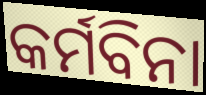
କର୍ମବିନା